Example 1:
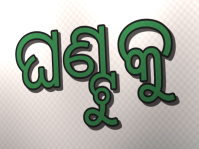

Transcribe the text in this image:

ଘଣ୍ଟୁକୁ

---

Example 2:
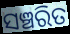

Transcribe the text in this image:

ସଞ୍ଚରିତ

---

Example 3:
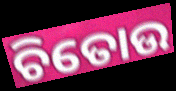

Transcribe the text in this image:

ଚିତୋଉ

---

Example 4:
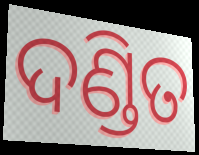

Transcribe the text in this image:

ଦଣ୍ଡିତ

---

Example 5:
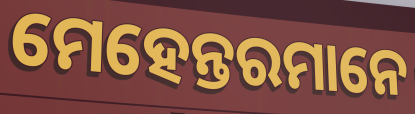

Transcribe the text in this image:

ମେହେନ୍ତରମାନେ